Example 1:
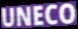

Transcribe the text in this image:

UNECO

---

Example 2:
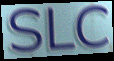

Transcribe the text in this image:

SLC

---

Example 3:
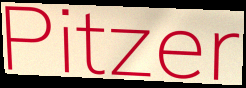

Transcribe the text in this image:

Pitzer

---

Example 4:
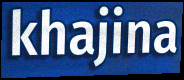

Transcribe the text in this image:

khajina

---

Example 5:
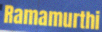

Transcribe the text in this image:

Ramamurthi